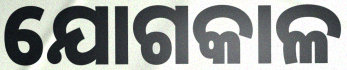
ଯୋଗକାଳ